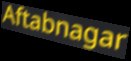
Aftabnagar